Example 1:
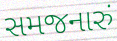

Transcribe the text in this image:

સમજનારું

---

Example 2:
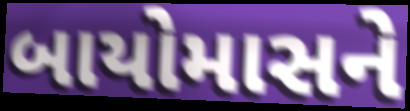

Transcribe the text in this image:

બાયોમાસને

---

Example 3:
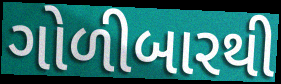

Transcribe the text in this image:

ગોળીબારથી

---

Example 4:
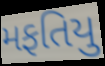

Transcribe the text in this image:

મફતિયુ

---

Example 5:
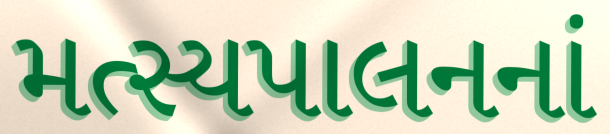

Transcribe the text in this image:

મત્સ્યપાલનનાં